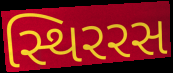
સ્થિરરસ